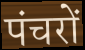
पंचरों